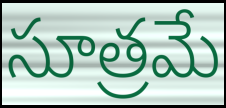
సూత్రమే